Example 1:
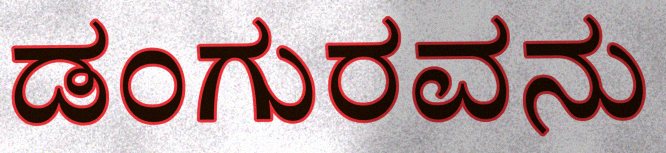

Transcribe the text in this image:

ಡಂಗುರವನು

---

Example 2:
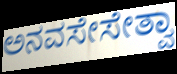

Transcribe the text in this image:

ಅನವಸೇಸೇತ್ವಾ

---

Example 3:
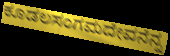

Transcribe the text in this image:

ಕೂಡಲಸಂಗಮದೇವನೆನ್ನ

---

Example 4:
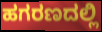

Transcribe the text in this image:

ಹಗರಣದಲ್ಲಿ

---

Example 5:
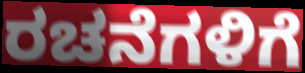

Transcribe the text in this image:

ರಚನೆಗಳಿಗೆ